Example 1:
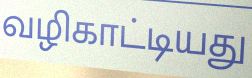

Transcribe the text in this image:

வழிகாட்டியது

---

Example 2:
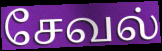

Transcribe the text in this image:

சேவல்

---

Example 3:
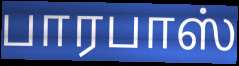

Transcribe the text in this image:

பாரபாஸ்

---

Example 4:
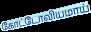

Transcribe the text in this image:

கோட்டோவியமாய்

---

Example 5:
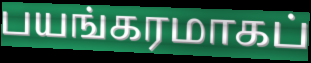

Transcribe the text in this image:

பயங்கரமாகப்